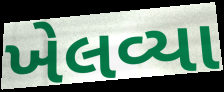
ખેલવ્યા